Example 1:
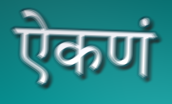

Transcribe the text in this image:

ऐकणं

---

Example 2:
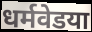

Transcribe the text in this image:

धर्मवेडया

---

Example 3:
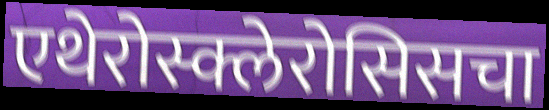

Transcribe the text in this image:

एथेरोस्क्लेरोसिसचा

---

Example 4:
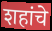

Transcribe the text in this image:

शहांचे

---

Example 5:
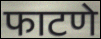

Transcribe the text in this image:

फाटणे